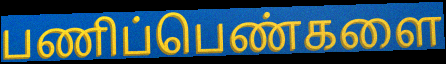
பணிப்பெண்களை